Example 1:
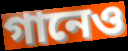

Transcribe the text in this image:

গানেও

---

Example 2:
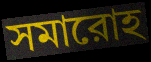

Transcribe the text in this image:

সমারোহ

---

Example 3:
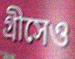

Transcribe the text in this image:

গ্রীসেও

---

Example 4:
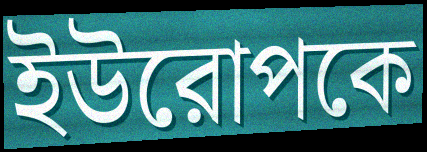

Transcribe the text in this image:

ইউরোপকে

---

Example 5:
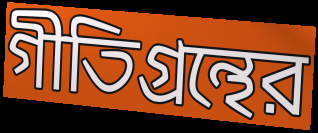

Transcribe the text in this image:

গীতিগ্রন্থের